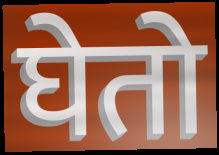
घेतो